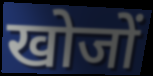
खोजों